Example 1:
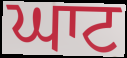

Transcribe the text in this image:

ਘਾਟ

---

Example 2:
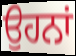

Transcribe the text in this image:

ਉਹਨਾਂ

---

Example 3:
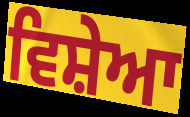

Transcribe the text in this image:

ਵਿਸ਼ੇਆ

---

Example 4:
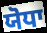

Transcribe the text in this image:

ਯੋਧਾ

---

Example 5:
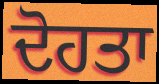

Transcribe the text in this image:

ਦੋਹਤਾ